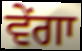
ਵੇਂਗਾ